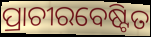
ପ୍ରାଚୀରବେଷ୍ଟିତ